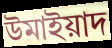
উমাইয়াদ